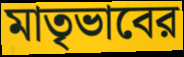
মাতৃভাবের